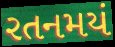
રતનમયં